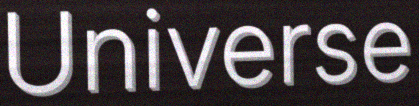
Universe